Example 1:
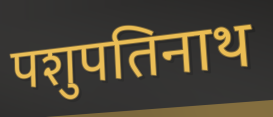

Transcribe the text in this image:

पशुपतिनाथ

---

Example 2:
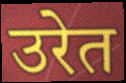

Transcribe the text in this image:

उरेत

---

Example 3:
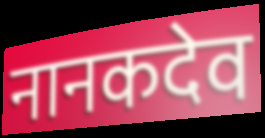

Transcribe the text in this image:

नानकदेव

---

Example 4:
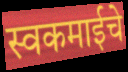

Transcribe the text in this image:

स्वकमाईचे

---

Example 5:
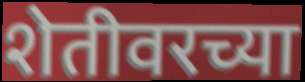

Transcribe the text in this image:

शेतीवरच्या